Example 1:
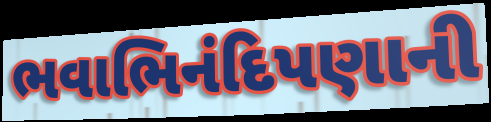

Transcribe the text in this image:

ભવાભિનંદિપણાની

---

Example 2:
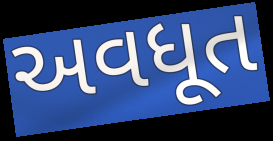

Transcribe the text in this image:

અવધૂત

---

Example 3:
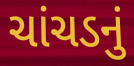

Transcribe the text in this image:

ચાંચડનું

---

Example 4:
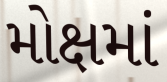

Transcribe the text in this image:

મોક્ષમાં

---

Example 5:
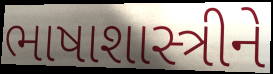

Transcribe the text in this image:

ભાષાશાસ્ત્રીને